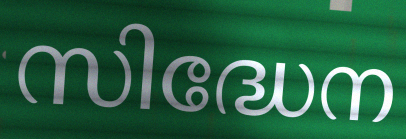
സിദ്ധേന